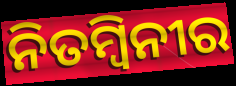
ନିତମ୍ବିନୀର